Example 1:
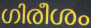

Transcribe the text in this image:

ഗിരീശം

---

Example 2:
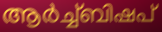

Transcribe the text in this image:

ആർച്ച്ബിഷപ്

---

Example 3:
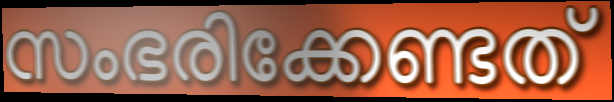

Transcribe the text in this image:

സംഭരിക്കേണ്ടത്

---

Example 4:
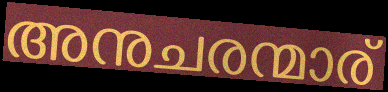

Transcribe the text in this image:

അനുചരന്മാര്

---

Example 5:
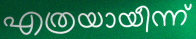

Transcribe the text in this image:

എത്രയായീന്ന്